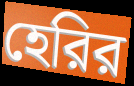
হেরির